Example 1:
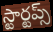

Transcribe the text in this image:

స్టార్టప్స్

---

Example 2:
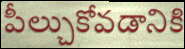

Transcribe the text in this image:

పీల్చుకోవడానికి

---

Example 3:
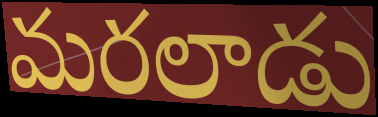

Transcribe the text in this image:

మరలాడు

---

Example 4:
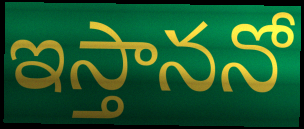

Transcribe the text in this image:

ఇస్తాననో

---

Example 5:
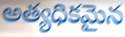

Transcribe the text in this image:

అత్యధికమైన